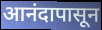
आनंदापासून